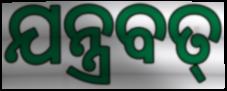
ଯନ୍ତ୍ରବତ୍